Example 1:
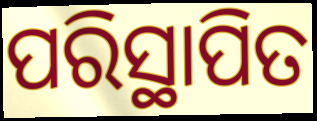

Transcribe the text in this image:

ପରିସ୍ଥାପିତ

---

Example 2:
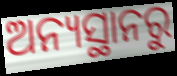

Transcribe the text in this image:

ଅନ୍ୟସ୍ଥାନରୁ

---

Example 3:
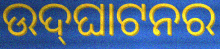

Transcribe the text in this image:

ଉଦ୍‍ଘାଟନର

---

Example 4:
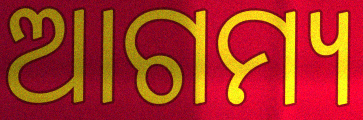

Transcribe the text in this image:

ଆଗମ୍ୟ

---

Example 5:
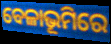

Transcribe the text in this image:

ବେଳାଭୂମିରେ